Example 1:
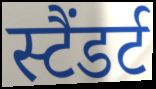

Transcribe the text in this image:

स्टैंडर्ट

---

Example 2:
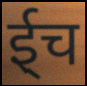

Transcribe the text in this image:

ई्च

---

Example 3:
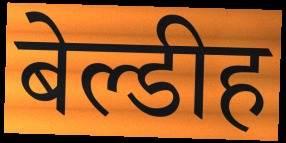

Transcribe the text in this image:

बेल्डीह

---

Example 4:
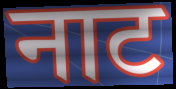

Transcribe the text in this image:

नाट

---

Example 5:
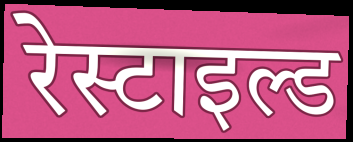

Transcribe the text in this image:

रेस्टाइल्ड